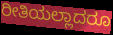
ರೀತಿಯಲ್ಲಾದರೂ